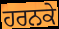
ਹਰਨਕੇ